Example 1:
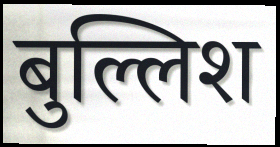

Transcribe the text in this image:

बुल्लिश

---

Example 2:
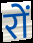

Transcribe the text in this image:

रों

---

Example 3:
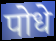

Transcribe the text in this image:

पोधे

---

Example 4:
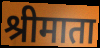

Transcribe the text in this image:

श्रीमाता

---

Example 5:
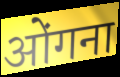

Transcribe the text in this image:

ओंगना